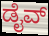
ಡೈವ್